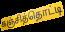
கஞ்சித்தொட்டி